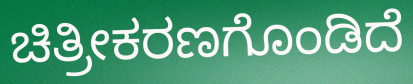
ಚಿತ್ರೀಕರಣಗೊಂಡಿದೆ